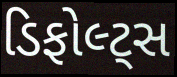
ડિફોલ્ટ્સ